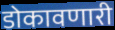
डोकावणारी